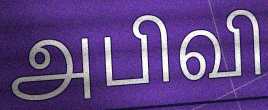
அபிவி